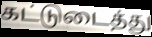
கட்டுடைத்து